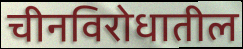
चीनविरोधातील